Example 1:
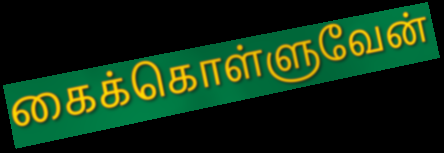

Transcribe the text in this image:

கைக்கொள்ளுவேன்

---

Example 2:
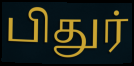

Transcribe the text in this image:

பிதுர்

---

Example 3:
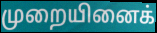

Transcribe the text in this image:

முறையினைக்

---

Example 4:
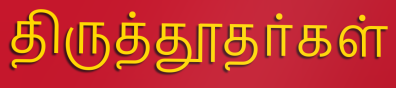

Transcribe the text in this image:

திருத்தூதர்கள்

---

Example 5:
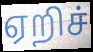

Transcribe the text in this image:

ஏறிச்